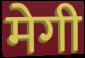
मेगी